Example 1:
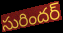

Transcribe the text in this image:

సురిందర్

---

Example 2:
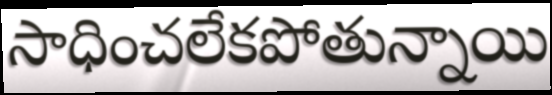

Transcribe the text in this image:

సాధించలేకపోతున్నాయి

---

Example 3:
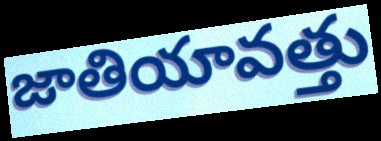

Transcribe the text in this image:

జాతియావత్తు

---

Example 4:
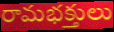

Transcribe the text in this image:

రామభక్తులు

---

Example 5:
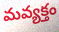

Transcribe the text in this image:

మవ్యక్తం